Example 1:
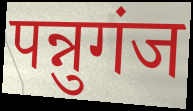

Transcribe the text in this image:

पन्नुगंज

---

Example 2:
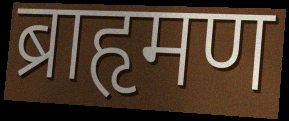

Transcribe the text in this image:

ब्राहृमण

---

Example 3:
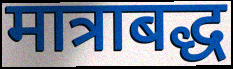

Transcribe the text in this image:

मात्राबद्ध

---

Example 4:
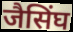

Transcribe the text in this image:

जैसिंघ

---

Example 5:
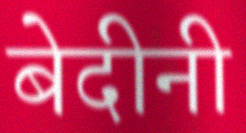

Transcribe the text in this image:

बेदीनी